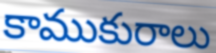
కాముకురాలు